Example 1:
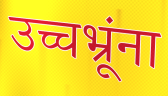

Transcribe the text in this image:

उच्चभ्रूंना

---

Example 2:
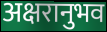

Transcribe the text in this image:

अक्षरानुभव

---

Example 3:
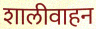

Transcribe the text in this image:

शालीवाहन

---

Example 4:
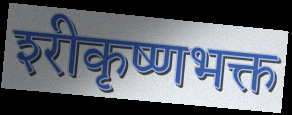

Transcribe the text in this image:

श्रीकृष्णभक्त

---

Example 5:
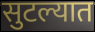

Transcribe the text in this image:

सुटल्यात